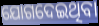
ଯୋଗଦେଇଥିବା